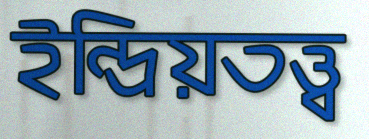
ইন্দ্রিয়তত্ত্ব